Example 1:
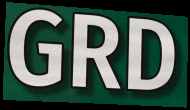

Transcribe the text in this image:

GRD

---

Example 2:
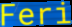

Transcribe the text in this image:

Feri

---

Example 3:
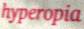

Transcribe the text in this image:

hyperopia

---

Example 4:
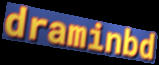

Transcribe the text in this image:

draminbd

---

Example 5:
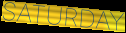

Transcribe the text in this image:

SATURDAY